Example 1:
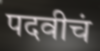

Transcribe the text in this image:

पदवीचं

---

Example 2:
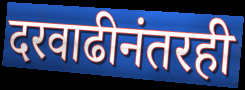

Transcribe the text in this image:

दरवाढीनंतरही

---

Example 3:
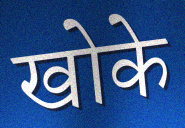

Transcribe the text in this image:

खोके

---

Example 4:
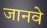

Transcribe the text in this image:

जानवे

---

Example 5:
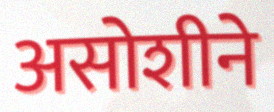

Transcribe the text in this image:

असोशीने